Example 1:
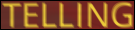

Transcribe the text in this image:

TELLING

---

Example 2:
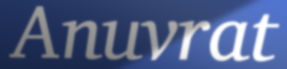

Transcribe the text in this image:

Anuvrat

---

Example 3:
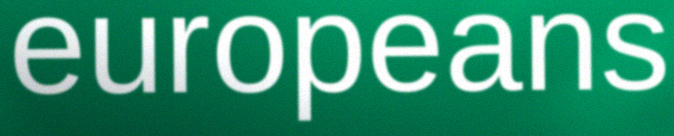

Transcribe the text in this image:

europeans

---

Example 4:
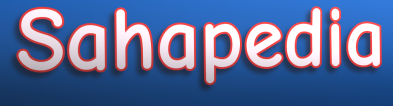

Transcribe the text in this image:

Sahapedia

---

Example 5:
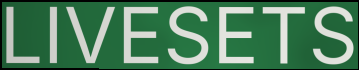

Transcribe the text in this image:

LIVESETS